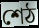
শেঠ